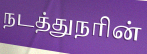
நடத்துநரின்